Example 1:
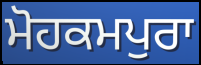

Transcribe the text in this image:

ਮੋਹਕਮਪੁਰਾ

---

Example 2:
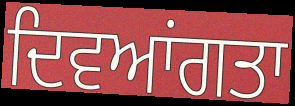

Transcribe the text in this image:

ਦਿਵਆਂਗਤਾ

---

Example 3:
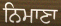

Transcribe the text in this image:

ਨਿਮਾਣਾ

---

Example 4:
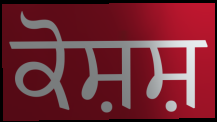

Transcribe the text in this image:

ਕੋਸ਼ਸ਼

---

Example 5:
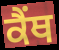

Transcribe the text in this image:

ਕੈਂਥ